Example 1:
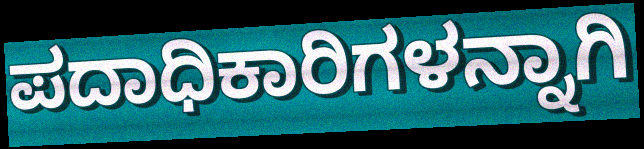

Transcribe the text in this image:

ಪದಾಧಿಕಾರಿಗಳನ್ನಾಗಿ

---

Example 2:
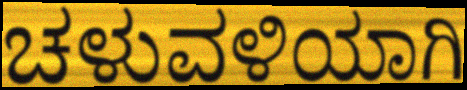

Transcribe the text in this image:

ಚಳುವಳಿಯಾಗಿ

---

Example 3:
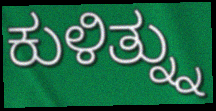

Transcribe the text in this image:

ಕುಳಿತ್ನ್ನು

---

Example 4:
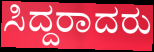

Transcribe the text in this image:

ಸಿದ್ದರಾದರು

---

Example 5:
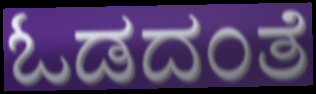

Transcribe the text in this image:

ಓಡದಂತೆ